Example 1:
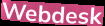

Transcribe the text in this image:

Webdesk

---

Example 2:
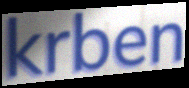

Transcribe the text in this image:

krben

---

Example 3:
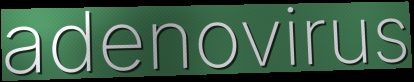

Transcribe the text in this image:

adenovirus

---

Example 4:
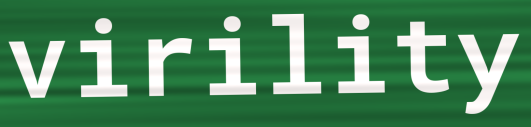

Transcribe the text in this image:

virility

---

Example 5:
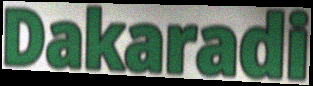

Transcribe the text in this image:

Dakaradi